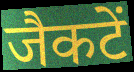
जैकटें